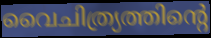
വൈചിത്ര്യത്തിന്റെ